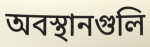
অবস্থানগুলি